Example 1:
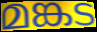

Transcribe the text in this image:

മങ്കട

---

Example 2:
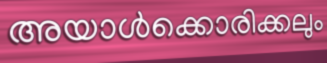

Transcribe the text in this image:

അയാൾക്കൊരിക്കലും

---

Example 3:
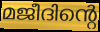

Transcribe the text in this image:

മജീദിന്റെ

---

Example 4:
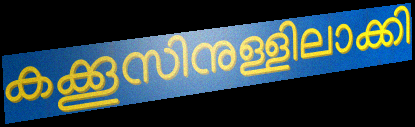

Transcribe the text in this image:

കക്കൂസിനുള്ളിലാക്കി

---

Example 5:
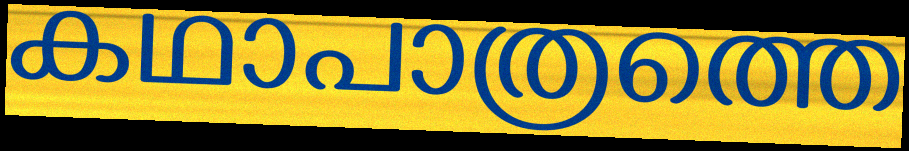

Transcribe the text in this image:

കഥാപാത്രത്തെ